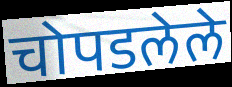
चोपडलेले